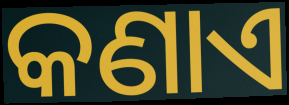
କଣାଏ